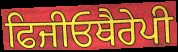
ਫਿਜੀਓਥੈਰੇਪੀ